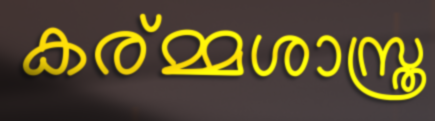
കര്മ്മശാസ്ത്ര